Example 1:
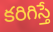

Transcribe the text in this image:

కరిగిస్తే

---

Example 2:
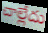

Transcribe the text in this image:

చాల్లేదు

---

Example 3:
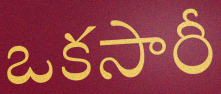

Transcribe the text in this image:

ఒకసారీ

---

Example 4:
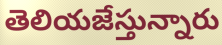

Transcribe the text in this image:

తెలియజేస్తున్నారు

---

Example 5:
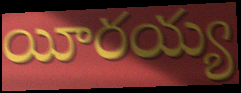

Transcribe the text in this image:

యీరయ్య